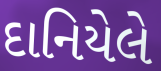
દાનિયેલે